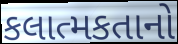
કલાત્મકતાનો